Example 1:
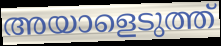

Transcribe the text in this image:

അയാളെടുത്ത്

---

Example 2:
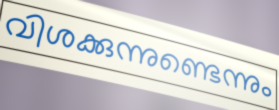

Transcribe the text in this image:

വിശക്കുന്നുണ്ടെന്നും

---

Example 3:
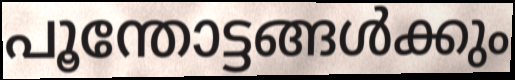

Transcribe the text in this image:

പൂന്തോട്ടങ്ങൾക്കും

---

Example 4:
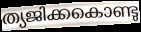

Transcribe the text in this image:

ത്യജിക്കകൊണ്ടു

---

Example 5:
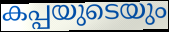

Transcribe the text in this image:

കപ്പയുടെയും